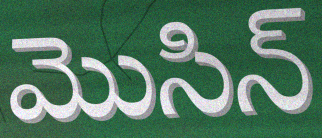
మొసిన్